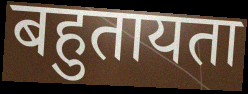
बहुतायता